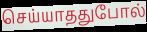
செய்யாததுபோல்